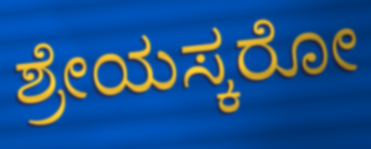
ಶ್ರೇಯಸ್ಕರೋ